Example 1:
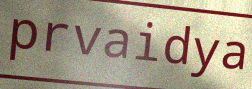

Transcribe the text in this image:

prvaidya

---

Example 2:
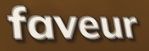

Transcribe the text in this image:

faveur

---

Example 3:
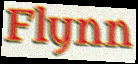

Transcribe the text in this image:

Flynn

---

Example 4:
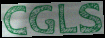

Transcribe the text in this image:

CGLS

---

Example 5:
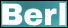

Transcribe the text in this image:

Berl